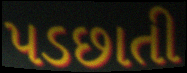
પડછાતી